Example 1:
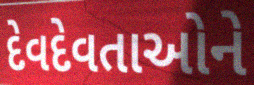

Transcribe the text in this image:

દેવદેવતાઓને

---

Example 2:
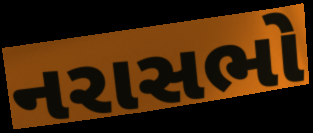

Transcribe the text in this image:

નરાસભો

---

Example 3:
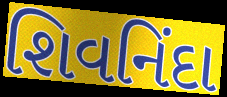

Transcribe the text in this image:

શિવનિંદા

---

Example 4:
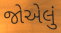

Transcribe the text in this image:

જોએલું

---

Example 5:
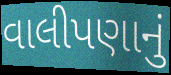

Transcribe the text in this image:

વાલીપણાનું